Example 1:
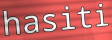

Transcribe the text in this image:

hasiti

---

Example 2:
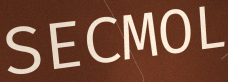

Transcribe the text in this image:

SECMOL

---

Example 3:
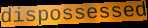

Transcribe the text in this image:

dispossessed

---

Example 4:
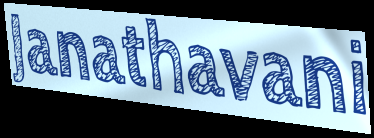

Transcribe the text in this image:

Janathavani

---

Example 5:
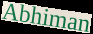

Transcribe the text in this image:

Abhiman